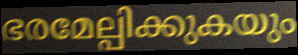
ഭരമേല്പിക്കുകയും